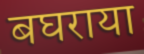
बघराया